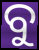
ବୁ